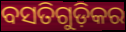
ବସତିଗୁଡ଼ିକର